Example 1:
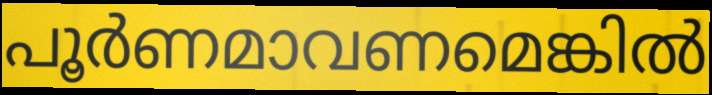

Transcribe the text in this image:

പൂർണമാവണമെങ്കിൽ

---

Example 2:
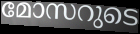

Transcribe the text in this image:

മോസറുടെ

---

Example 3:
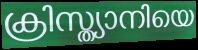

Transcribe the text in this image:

ക്രിസ്ത്യാനിയെ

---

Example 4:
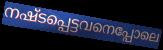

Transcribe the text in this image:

നഷ്ടപ്പെട്ടവനെപ്പോലെ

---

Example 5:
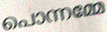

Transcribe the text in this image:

പൊന്നമ്മേ